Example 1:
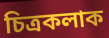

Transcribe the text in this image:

চিত্ৰকলাক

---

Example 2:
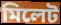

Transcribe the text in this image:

মিলেট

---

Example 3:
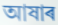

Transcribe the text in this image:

আষাৰ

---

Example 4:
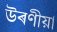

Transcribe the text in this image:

উৰণীয়া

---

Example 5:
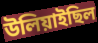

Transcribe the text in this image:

উলিয়াইছিল